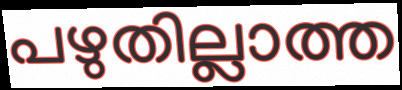
പഴുതില്ലാത്ത